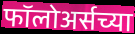
फॉलोअर्सच्या